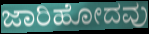
ಜಾರಿಹೋದವು